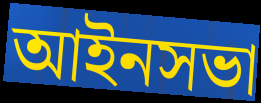
আইনসভা